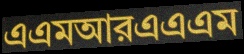
এএমআরএএএম